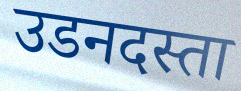
उडनदस्ता